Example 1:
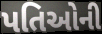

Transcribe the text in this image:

પતિઓની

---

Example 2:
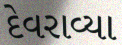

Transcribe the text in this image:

દેવરાવ્યા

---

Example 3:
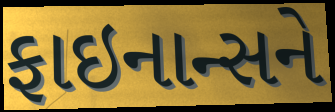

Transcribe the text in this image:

ફાઇનાન્સને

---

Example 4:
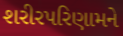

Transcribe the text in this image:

શરીરપરિણામને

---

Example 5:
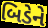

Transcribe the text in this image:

બિડેને